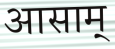
आसाम्